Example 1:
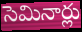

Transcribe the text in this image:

సెమినార్లు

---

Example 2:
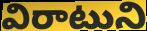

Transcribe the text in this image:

విరాటుని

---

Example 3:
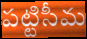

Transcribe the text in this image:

పట్టిసీమ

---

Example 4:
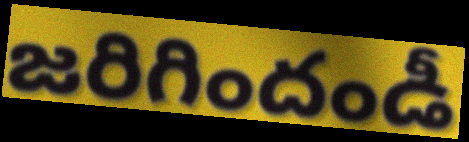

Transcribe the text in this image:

జరిగిందండీ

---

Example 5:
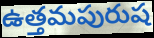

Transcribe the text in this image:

ఉత్తమపురుష